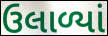
ઉલાળ્યાં